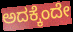
ಅದಕ್ಕೆಂದೇ